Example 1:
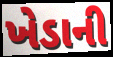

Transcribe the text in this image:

ખેડાની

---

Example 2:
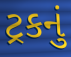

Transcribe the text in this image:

ટ્રકનું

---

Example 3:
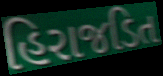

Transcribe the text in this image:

હિરાજડિત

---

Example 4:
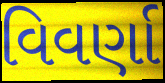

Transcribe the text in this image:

વિવર્ણા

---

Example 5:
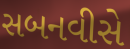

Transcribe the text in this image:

સબનવીસે